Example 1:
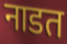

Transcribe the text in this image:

नाडत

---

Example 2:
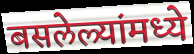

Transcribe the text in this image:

बसलेल्यांमध्ये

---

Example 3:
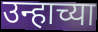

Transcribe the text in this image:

उन्हाच्या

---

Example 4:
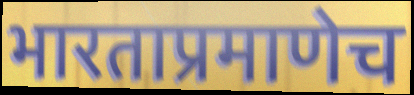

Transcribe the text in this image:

भारताप्रमाणेच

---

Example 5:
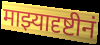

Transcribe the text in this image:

माझ्यादृष्टीनं